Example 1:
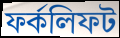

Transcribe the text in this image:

ফর্কলিফট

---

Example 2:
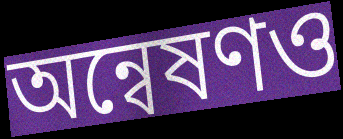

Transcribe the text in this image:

অন্বেষণও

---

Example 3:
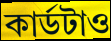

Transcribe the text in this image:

কার্ডটাও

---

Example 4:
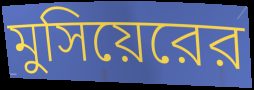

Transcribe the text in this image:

মুসিয়েরের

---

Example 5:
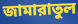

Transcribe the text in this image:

জামারাতুল